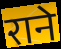
राने